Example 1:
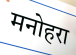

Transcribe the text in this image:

मनोहरा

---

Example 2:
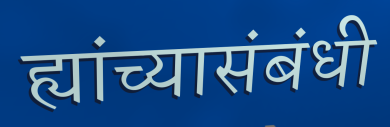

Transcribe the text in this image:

ह्यांच्यासंबंधी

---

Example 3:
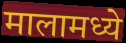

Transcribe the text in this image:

मालामध्ये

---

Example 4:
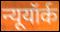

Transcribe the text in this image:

न्यूयॉर्क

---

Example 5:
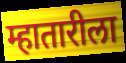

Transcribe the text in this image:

म्हातारीला